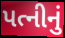
પત્નીનું